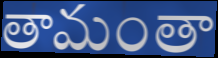
తామంతా